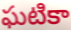
ఘటికా